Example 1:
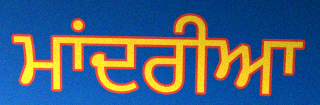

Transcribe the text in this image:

ਮਾਂਦਰੀਆ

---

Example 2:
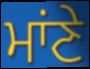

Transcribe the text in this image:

ਮਾਂਣੇ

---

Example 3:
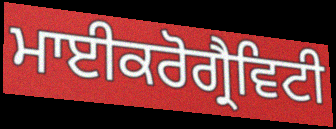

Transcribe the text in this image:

ਮਾਈਕਰੋਗ੍ਰੈਵਿਟੀ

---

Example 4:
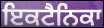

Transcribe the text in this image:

ਇਕਟੈਨਿਕਾ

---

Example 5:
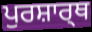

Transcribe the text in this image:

ਪੁਰਸ਼ਾਰ੍ਥ